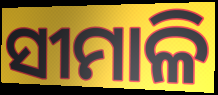
ସୀମାଳି